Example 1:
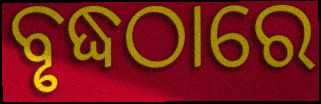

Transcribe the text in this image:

ବୃଦ୍ଧଠାରେ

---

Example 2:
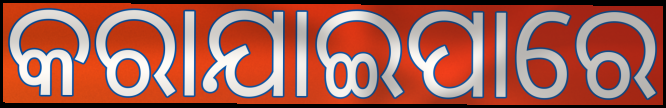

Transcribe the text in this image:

କରାଯାଇପାରେ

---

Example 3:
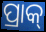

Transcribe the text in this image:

ପ୍ରାକ୍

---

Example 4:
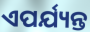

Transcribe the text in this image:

ଏପର୍ଯ୍ୟନ୍ତ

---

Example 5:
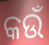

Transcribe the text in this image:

କଉଁ